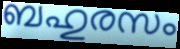
ബഹുരസം